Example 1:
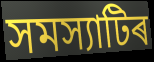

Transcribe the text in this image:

সমস্যাটিৰ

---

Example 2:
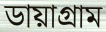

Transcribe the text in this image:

ডায়াগ্ৰাম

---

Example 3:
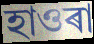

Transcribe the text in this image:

হাওৰা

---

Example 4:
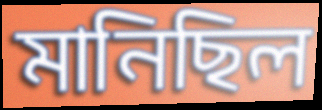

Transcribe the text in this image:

মানিছিল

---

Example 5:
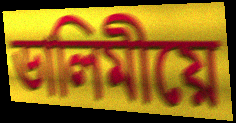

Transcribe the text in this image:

ডালিমীয়ে